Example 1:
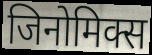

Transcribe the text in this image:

जिनोमिक्स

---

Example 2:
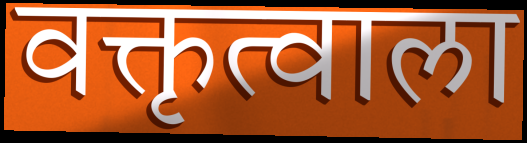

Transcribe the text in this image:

वक्तृत्वाला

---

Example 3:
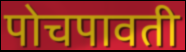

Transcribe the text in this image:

पोचपावती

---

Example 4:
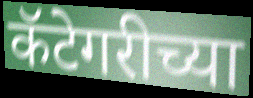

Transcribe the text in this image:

कॅटेगरीच्या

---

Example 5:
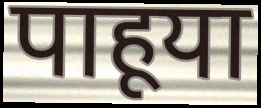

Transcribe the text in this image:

पाहूया